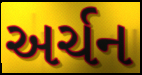
અર્ચન